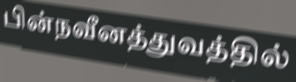
பின்நவீனத்துவத்தில்